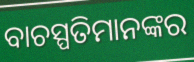
ବାଚସ୍ପତିମାନଙ୍କର